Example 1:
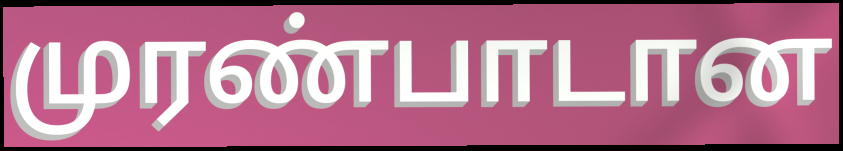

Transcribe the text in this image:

முரண்பாடான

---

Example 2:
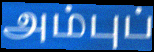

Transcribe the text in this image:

அம்புப்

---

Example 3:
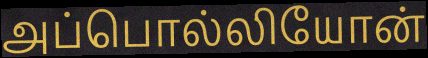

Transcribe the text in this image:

அப்பொல்லியோன்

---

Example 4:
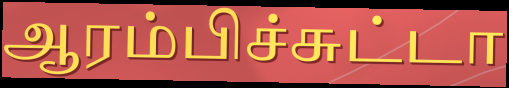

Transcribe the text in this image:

ஆரம்பிச்சுட்டா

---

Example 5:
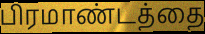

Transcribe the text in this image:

பிரமாண்டத்தை